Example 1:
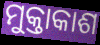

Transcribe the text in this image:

ମୁକ୍ତାକାଶ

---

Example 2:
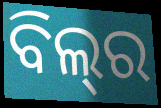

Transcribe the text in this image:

ବିଲ୍‌ର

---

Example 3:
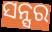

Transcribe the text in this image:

ସନ୍ସର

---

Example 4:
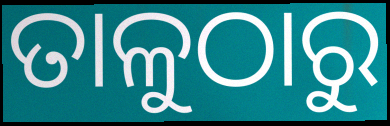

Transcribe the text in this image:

ତାଳୁଠାରୁ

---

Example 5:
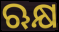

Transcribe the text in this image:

ଋକ୍ଷ